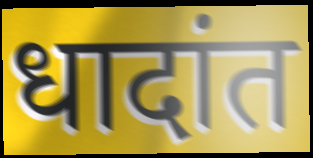
धादांत